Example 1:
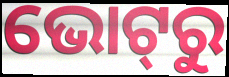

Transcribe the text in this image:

ଭୋଟ୍‌ରୁ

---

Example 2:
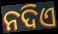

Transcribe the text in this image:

ନଦିଏ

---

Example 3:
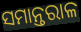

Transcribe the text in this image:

ସମାନ୍ତରାଳ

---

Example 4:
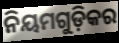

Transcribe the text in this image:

ନିୟମଗୁଡ଼ିକର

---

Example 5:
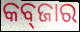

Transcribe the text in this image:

କବ୍‌ଜାର